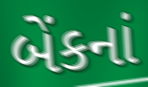
બેંકનાં